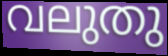
വലുതു